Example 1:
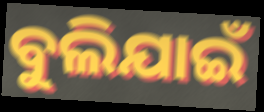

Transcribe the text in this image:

ବୁଲିଯାଇଁ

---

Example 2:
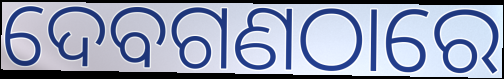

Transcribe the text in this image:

ଦେବଗଣଠାରେ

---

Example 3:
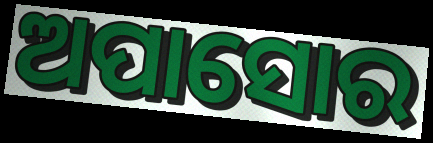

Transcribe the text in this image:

ଅପାସୋର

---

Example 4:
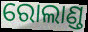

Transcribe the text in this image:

ରୋଲାଣ୍ଡ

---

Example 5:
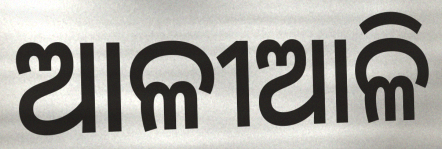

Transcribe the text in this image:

ଆଳୀଆଳି